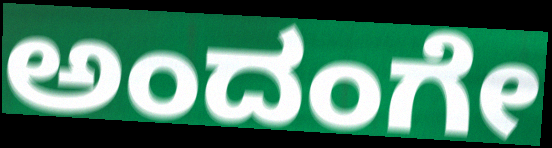
ಅಂದಂಗೇ